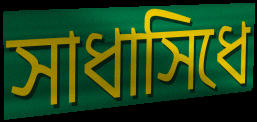
সাধাসিধে